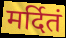
मर्दितं